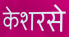
केशरसे